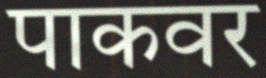
पाकवर